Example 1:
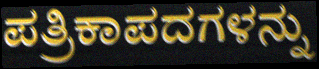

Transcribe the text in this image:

ಪತ್ರಿಕಾಪದಗಳನ್ನು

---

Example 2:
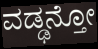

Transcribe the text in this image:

ವಡ್ಢನ್ತೋ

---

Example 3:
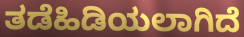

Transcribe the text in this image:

ತಡೆಹಿಡಿಯಲಾಗಿದೆ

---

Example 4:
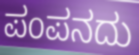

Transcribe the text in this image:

ಪಂಪನದು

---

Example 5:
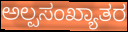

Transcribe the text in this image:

ಅಲ್ಪಸಂಖ್ಯಾತರ